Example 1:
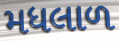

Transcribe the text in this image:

મધલાળ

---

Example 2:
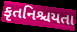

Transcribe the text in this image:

કૃતનિશ્ચયતા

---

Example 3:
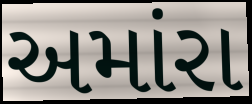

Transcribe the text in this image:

અમાંરા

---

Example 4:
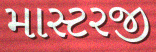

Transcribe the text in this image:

માસ્ટરજી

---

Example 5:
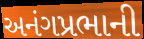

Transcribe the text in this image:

અનંગપ્રભાની